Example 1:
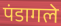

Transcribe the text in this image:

पंडागले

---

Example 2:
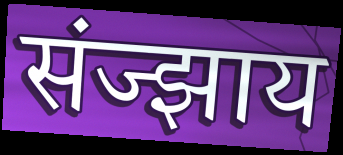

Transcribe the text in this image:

संज्झाय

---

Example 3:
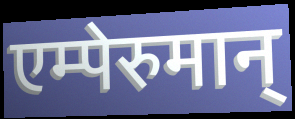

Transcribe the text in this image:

एम्पेरुमान्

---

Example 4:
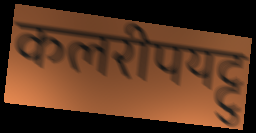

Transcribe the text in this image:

कलरीपयट्टु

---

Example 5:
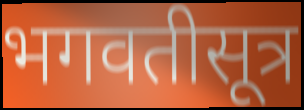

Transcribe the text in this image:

भगवतीसूत्र